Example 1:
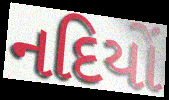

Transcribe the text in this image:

નદિયોં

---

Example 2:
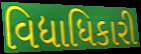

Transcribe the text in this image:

વિદ્યાધિકારી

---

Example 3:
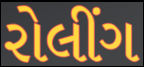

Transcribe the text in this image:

રોલીંગ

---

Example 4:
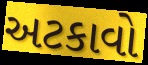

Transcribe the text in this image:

અટકાવો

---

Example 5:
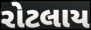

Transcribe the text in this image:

રોટલાય